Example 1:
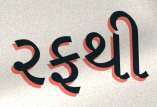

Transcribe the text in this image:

રફથી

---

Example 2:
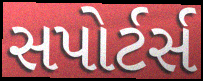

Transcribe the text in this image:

સપોર્ટર્સ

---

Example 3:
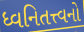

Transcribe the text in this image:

ધ્વનિતત્ત્વનો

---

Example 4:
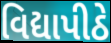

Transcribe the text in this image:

વિદ્યાપીઠે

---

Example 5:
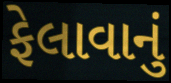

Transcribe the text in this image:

ફેલાવાનું